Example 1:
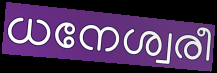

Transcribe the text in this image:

ധനേശ്വരീ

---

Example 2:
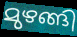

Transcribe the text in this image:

മുഴങ്ങി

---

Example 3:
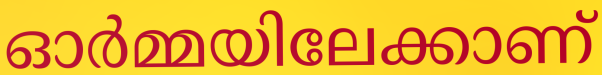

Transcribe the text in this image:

ഓർമ്മയിലേക്കാണ്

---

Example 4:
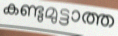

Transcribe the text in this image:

കണ്ടുമുട്ടാത്ത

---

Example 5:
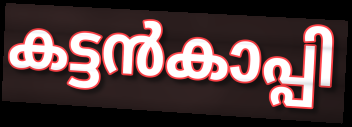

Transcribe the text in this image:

കട്ടൻകാപ്പി